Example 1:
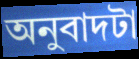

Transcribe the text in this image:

অনুবাদটা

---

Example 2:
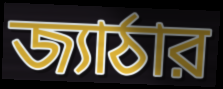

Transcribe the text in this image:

জ্যাঠার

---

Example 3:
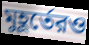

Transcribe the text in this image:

মুহূর্তেরও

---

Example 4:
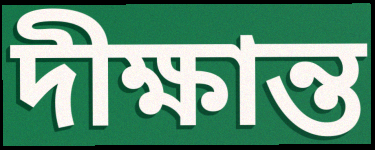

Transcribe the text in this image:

দীক্ষান্ত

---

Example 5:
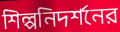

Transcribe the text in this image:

শিল্পনিদর্শনের